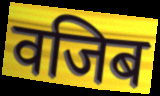
वजिब